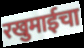
रखुमाईचा